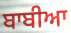
ਬਾਬੀਆ